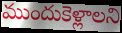
ముందుకెళ్లాలని